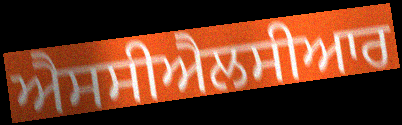
ਐਸਸੀਐਲਸੀਆਰ